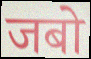
जबो